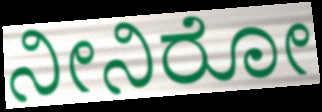
ನೀನಿರೋ